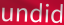
undid